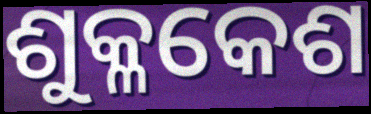
ଶୁକ୍ଳକେଶ